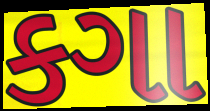
કગા